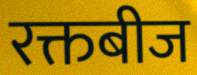
रक्तबीज